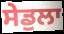
ਸੇਡੁਲਾ